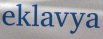
eklavya